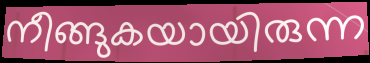
നീങ്ങുകയായിരുന്ന